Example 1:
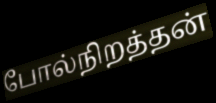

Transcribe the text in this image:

போல்நிறத்தன்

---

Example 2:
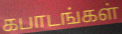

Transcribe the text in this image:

கபாடங்கள்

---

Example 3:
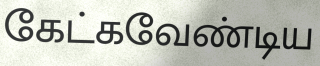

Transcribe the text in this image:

கேட்கவேண்டிய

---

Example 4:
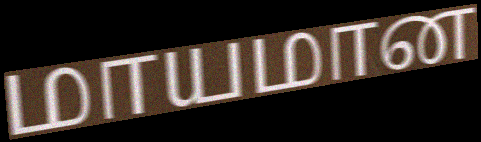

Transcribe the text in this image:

மாயமான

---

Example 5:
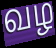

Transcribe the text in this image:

வழ